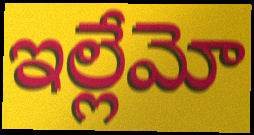
ఇల్లేమో